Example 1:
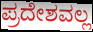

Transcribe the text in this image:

ಪ್ರದೇಶವಲ್ಲ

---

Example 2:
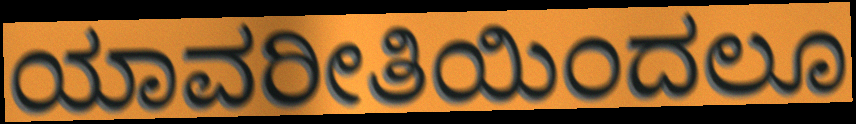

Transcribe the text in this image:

ಯಾವರೀತಿಯಿಂದಲೂ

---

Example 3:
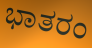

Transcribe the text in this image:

ಭಾತರಂ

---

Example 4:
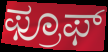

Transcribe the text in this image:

ಫ್ರೂಫ್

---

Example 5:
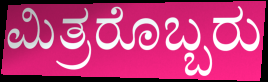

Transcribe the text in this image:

ಮಿತ್ರರೊಬ್ಬರು